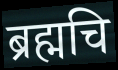
ब्रह्मचि